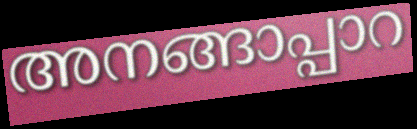
അനങ്ങാപ്പാറ